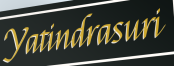
Yatindrasuri